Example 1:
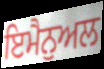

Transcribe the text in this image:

ਇਮੈਨੁਅਲ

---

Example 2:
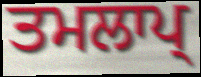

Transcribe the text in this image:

ਤਮਲਾਪ੍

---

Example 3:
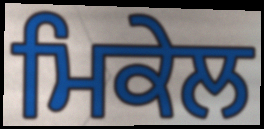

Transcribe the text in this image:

ਮਿਕੇਲ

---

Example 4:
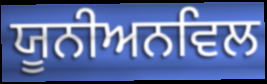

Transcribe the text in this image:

ਯੂਨੀਅਨਵਿਲ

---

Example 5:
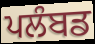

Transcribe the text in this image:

ਪਲੰਬਡ